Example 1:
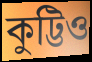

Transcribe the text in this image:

কুট্টিও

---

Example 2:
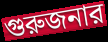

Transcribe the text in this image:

গুরুজনার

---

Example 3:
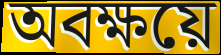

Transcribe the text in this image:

অবক্ষয়ে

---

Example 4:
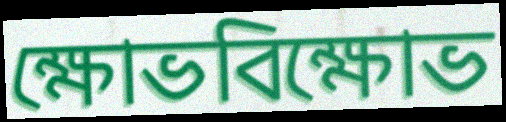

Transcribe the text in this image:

ক্ষোভবিক্ষোভ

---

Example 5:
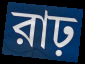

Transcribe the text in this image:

রাঢ়